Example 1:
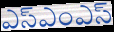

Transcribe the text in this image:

ఎస్ఎంఎస్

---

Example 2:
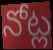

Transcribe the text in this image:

నోట్ల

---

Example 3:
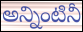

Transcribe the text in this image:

అన్నింటినీ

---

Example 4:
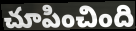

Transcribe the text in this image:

చూపించింది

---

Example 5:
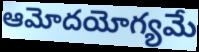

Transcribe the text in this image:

ఆమోదయోగ్యమే